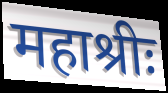
महाश्रीः